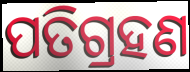
ପତିଗ୍ରହଣ